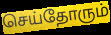
செய்தோரும்